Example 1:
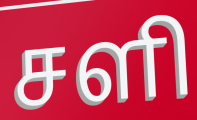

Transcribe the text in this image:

சளி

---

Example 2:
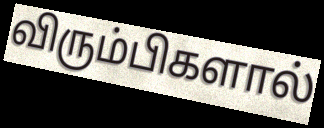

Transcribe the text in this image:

விரும்பிகளால்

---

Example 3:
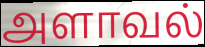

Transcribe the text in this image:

அளாவல்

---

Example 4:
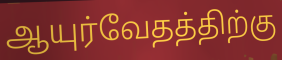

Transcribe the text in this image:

ஆயுர்வேதத்திற்கு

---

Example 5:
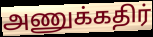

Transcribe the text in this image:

அணுக்கதிர்